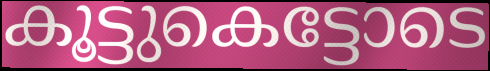
കൂട്ടുകെട്ടോടെ